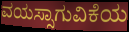
ವಯಸ್ಸಾಗುವಿಕೆಯ